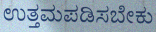
ಉತ್ತಮಪಡಿಸಬೇಕು